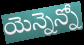
యెన్నెన్నో